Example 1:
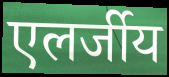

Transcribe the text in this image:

एलर्जीय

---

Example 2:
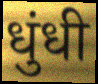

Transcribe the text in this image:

धुंधी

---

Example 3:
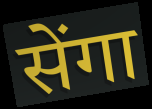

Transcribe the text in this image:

सेंगा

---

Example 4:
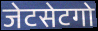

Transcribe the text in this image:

जेटसेटगो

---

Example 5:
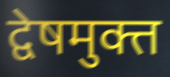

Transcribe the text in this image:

द्वेषमुक्त